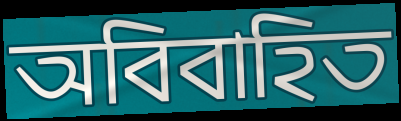
অবিবাহিত